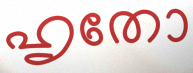
ഹൃതോ